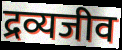
द्रव्यजीव